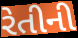
રેતીની